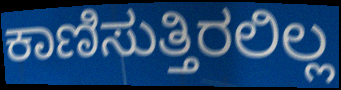
ಕಾಣಿಸುತ್ತಿರಲಿಲ್ಲ